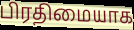
பிரதிமையாக